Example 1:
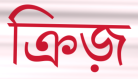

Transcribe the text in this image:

ক্রিজ়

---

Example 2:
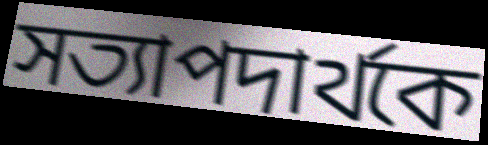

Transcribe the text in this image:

সত্যাপদার্থকে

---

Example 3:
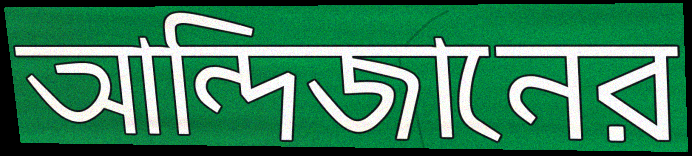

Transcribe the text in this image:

আন্দিজানের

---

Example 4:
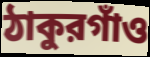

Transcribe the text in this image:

ঠাকুরগাঁও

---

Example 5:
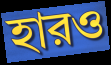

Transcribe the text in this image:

হারও